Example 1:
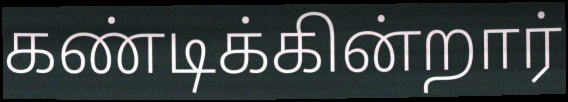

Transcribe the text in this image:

கண்டிக்கின்றார்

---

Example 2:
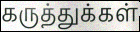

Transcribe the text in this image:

கருத்துக்கள்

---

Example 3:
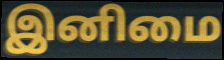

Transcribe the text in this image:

இனிமை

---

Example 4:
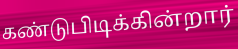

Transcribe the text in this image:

கண்டுபிடிக்கின்றார்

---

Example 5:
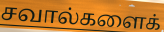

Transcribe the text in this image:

சவால்களைக்